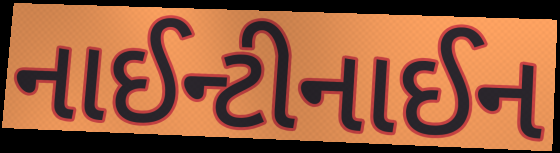
નાઈન્ટીનાઈન